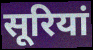
सूरियां